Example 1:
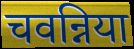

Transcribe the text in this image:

चवन्निया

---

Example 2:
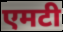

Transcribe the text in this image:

एमटी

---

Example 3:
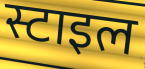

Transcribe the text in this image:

स्टाइल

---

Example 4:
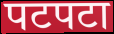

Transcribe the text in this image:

पटपटा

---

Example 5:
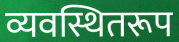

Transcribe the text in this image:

व्यवस्थितरूप